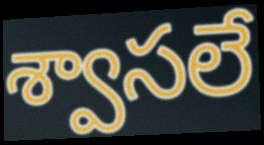
శ్వాసలే